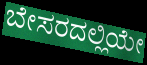
ಬೇಸರದಲ್ಲಿಯೇ